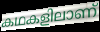
കഥകളിലാണ്